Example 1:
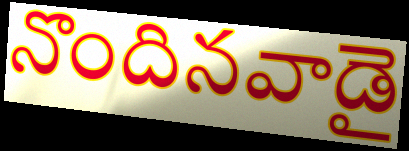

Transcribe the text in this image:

నొందినవాడై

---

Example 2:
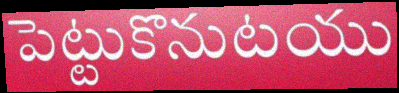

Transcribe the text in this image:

పెట్టుకొనుటయు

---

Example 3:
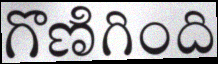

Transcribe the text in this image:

గొణిగింది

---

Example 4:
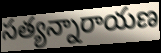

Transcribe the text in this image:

సత్యన్నారాయణ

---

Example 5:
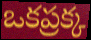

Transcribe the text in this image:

ఒకప్రక్క